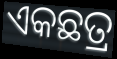
ଏକଛତ୍ର